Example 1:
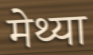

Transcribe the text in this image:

मेथ्या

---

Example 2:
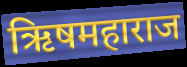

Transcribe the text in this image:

ॠिषमहाराज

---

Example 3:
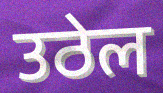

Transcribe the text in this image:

उठेल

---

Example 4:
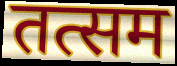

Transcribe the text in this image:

तत्सम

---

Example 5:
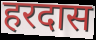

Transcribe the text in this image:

हरदास